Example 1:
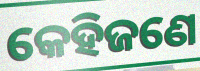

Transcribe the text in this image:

କେହିଜଣେ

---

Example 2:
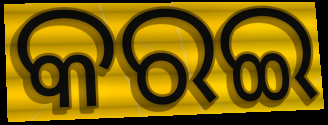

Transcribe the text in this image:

କରଇ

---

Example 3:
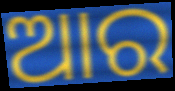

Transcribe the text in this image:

ଆର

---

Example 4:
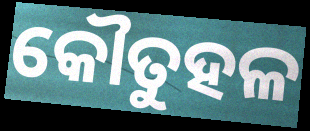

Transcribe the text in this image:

କୌତୁହଳ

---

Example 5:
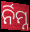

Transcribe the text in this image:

ର୍ନିମ୍ନ